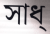
সাধ্